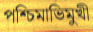
পশ্চিমাভিমুখী